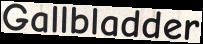
Gallbladder